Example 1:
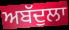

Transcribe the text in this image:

ਅਬੱਦੁਲਾ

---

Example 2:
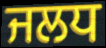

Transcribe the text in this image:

ਜਲਧ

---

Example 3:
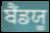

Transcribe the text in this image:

ਬੈਂਡਯੂ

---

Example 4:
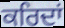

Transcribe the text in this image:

ਕਰਿਦਾਂ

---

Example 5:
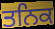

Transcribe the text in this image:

ਤਨਿਕ